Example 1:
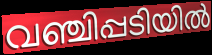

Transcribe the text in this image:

വഞ്ചിപ്പടിയിൽ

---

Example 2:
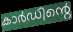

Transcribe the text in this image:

കാർഡിന്റെ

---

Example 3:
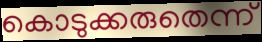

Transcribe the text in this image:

കൊടുക്കരുതെന്ന്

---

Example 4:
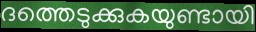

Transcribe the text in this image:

ദത്തെടുക്കുകയുണ്ടായി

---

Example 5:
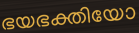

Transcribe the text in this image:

ഭയഭക്തിയോ